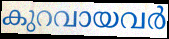
കുറവായവർ